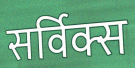
सर्विक्स